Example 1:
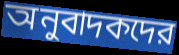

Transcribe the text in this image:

অনুবাদকদের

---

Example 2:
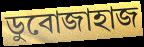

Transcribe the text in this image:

ডুবোজাহাজ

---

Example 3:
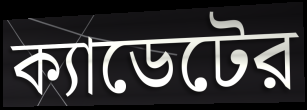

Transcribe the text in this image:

ক্যাডেটের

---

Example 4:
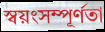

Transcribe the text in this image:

স্বয়ংসম্পূর্ণতা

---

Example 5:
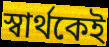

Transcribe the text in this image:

স্বার্থকেই